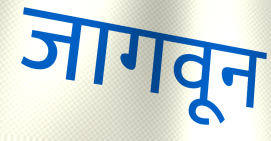
जागवून